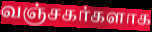
வஞ்சகர்களாக